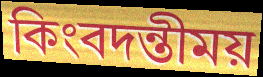
কিংবদন্তীময়